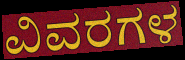
ವಿವರಗಳ